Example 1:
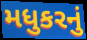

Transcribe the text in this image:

મધુકરનું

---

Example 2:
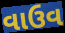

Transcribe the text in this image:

વાઉવ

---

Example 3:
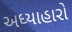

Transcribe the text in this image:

અધ્યાહારો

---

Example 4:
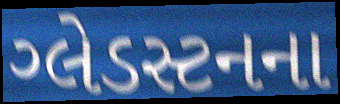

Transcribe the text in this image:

ગ્લેડસ્ટનના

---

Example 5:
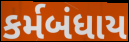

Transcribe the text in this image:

કર્મબંધાય